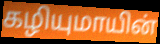
கழியுமாயின்